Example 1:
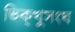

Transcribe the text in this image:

ভিক্খুসংঘ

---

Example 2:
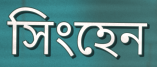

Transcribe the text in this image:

সিংহেন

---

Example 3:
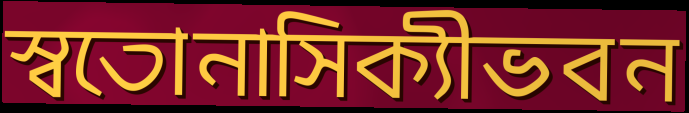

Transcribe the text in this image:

স্বতোনাসিক্যীভবন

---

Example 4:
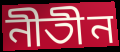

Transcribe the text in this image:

নীতীন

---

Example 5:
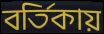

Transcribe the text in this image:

বর্তিকায়